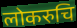
लोकरुचि